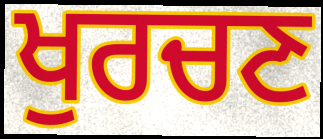
ਖੁਰਚਣ